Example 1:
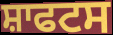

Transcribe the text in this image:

ਸ਼ਾਫਟਸ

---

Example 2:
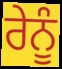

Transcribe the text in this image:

ਰੇਨੂੰ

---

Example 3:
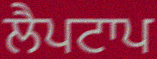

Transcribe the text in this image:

ਲੈਪਟਾਪ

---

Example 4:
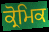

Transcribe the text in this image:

ਕ੍ਰੋਮਿਕ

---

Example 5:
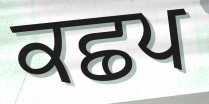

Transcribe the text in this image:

ਕਛਪ